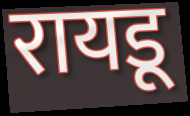
रायडू